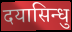
दयासिन्धु